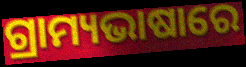
ଗ୍ରାମ୍ୟଭାଷାରେ